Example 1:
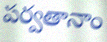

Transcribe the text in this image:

పర్వతానాం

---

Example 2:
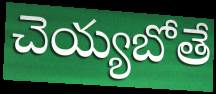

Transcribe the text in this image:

చెయ్యబోతే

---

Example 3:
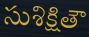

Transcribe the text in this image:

సుశిక్షితౌ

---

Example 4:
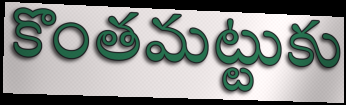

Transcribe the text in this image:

కొంతమట్టుకు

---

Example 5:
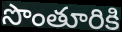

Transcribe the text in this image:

సొంతూరికి